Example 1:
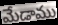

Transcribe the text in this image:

మేడాము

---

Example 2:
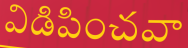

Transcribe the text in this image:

విడిపించవా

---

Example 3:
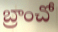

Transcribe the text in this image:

బ్రాంచో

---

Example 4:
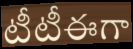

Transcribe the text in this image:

టీటీఈగా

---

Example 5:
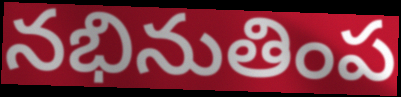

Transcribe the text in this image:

నభినుతింప